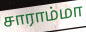
சாராம்மா